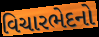
વિચારભેદનો